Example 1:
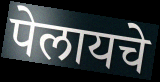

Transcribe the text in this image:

पेलायचे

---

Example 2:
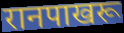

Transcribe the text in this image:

रानपाखरू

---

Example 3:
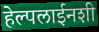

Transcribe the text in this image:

हेल्पलाईनशी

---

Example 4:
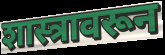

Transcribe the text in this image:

शास्त्रावरून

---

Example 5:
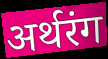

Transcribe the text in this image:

अर्थरंग